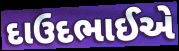
દાઉદભાઈએ